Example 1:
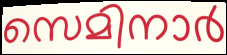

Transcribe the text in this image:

സെമിനാർ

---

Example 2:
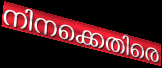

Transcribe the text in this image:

നിനക്കെതിരെ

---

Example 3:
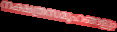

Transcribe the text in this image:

നക്ഷത്രസമൂഹങ്ങളും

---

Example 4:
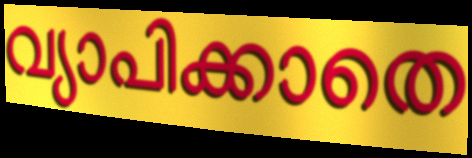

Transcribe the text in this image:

വ്യാപിക്കാതെ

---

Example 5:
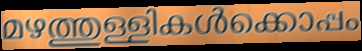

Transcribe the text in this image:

മഴത്തുള്ളികൾക്കൊപ്പം